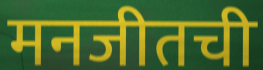
मनजीतची